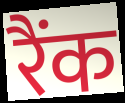
रैंक